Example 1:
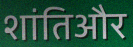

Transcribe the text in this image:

शांतिऔर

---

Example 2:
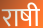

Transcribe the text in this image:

राषी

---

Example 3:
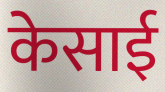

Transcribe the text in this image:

केसाई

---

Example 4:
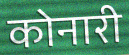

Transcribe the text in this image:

कोनारी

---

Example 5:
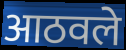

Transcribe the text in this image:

आठवले